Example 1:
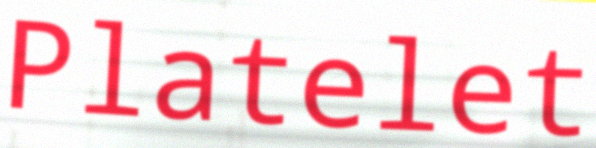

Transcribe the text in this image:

Platelet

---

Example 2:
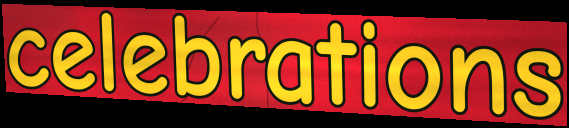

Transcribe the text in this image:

celebrations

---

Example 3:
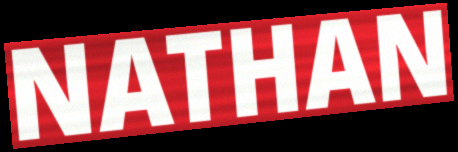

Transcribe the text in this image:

NATHAN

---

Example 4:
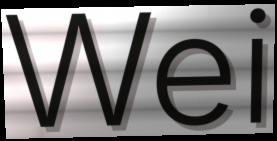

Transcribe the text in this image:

Wei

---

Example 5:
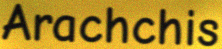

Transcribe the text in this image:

Arachchis